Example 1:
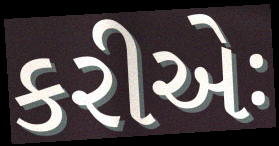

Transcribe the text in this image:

કરીએઃ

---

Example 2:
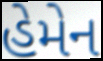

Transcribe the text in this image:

હેમેન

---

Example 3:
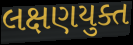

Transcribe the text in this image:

લક્ષણયુક્ત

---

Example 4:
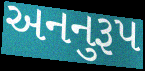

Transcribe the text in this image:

અનનુરૂપ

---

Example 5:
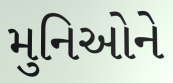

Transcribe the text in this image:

મુનિઓને